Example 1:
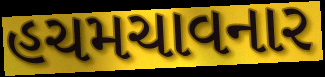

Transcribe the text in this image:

હચમચાવનાર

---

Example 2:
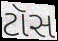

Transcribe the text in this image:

ટૉસ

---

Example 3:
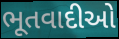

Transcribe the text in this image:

ભૂતવાદીઓ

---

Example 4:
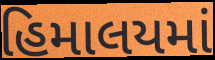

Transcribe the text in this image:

હિમાલયમાં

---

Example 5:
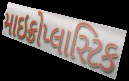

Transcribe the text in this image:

માઇક્રોપ્લાસ્ટિક